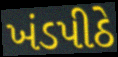
ખંડપીઠે